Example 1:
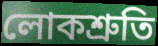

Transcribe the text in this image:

লোকশ্রুতি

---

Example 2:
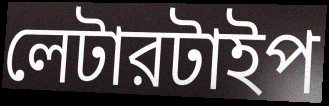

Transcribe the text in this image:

লেটারটাইপ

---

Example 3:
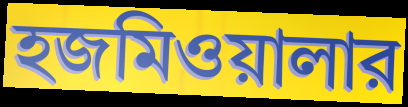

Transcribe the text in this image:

হজমিওয়ালার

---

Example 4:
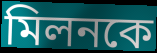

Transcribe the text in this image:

মিলনকে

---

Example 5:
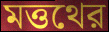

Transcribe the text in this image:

মত্তথের